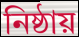
নিষ্ঠায়